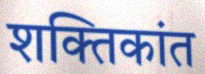
शक्तिकांत